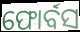
ଫୋର୍ବସ